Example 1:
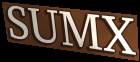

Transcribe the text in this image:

SUMX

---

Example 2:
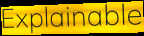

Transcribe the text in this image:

Explainable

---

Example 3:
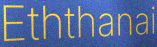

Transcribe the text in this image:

Eththanai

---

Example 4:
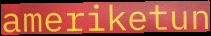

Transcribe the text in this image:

ameriketun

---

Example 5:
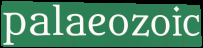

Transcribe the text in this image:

palaeozoic